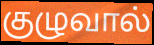
குழுவால்